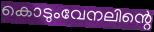
കൊടുംവേനലിന്റെ